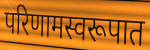
परिणामस्वरूपात